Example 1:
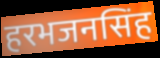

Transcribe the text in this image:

हरभजनसिंह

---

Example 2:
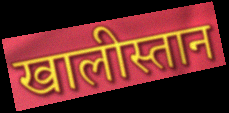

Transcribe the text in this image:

खालीस्तान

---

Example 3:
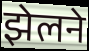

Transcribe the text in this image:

झेलने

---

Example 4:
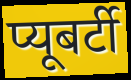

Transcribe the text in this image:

प्यूबर्टी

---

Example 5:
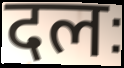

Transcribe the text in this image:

दलः